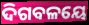
ଦିଗବଳୟେ